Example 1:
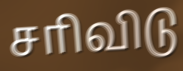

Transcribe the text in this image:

சரிவிடு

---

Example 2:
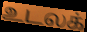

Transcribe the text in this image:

உடலக்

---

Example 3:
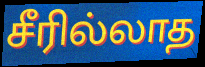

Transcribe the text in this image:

சீரில்லாத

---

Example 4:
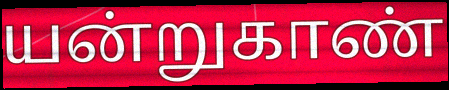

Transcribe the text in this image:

யன்றுகாண்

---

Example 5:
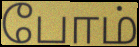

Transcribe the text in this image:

போம்